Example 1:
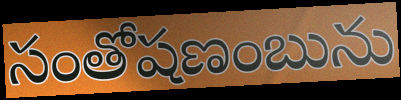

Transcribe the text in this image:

సంతోషణంబును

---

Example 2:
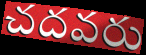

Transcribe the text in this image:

చదవరు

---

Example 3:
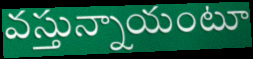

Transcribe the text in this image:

వస్తున్నాయంటూ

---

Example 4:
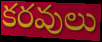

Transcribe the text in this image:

కరవులు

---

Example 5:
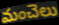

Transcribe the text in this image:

మంచెలు